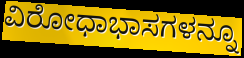
ವಿರೋಧಾಭಾಸಗಳನ್ನೂ